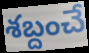
శబ్దంచే